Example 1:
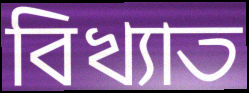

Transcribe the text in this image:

বিখ্যাত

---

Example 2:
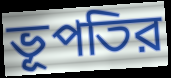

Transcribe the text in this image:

ভূপতির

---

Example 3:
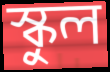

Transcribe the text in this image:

স্কুল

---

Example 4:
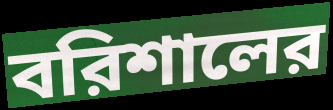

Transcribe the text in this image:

বরিশালের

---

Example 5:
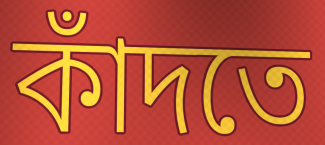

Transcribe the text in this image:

কাঁদতে